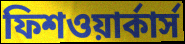
ফিশওয়ার্কার্স